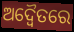
ଅଦ୍ୱୈତରେ